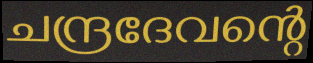
ചന്ദ്രദേവന്റെ